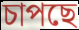
চাপছে